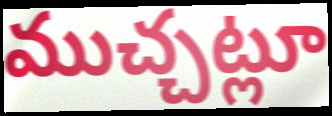
ముచ్చట్లూ